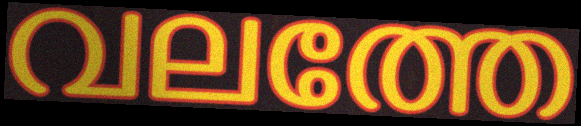
വലത്തേ